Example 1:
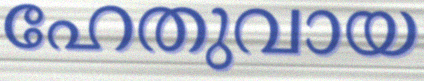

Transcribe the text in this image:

ഹേതുവായ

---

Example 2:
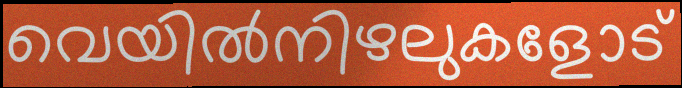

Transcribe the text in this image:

വെയിൽനിഴലുകളോട്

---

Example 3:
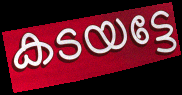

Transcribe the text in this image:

കടയട്ടേ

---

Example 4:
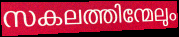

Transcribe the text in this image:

സകലത്തിന്മേലും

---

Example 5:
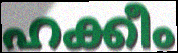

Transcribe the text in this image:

ഹക്കീം